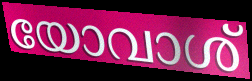
യോവാശ്